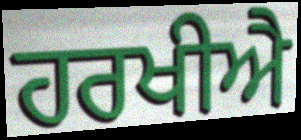
ਹਰਖੀਐ